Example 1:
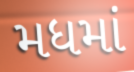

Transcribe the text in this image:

મધમાં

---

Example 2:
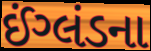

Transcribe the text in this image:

ઈંગ્લંડના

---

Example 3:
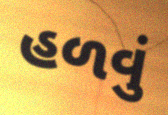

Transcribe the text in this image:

હળવું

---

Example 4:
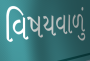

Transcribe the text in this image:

વિષયવાળું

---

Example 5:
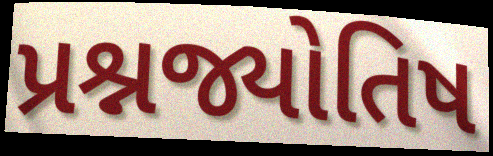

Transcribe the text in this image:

પ્રશ્નજ્યોતિષ